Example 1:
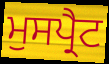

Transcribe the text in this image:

ਮੁਸਪ੍ਰੈਟ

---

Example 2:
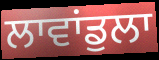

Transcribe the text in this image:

ਲਾਵਾਂਡੁਲਾ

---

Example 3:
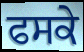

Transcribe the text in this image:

ਫਸਕੇ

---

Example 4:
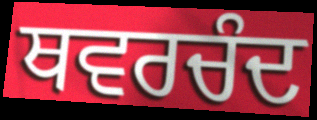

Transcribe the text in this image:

ਥਵਰਚੰਦ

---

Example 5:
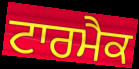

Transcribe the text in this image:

ਟਾਰਮੈਕ